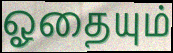
ஓதையும்